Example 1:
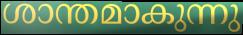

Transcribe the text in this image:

ശാന്തമാകുന്നു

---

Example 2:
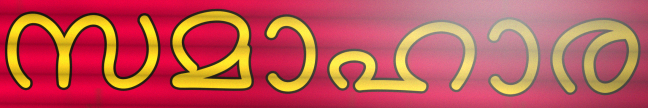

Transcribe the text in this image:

സമാഹാര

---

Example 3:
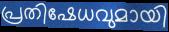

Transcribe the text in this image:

പ്രതിഷേധവുമായി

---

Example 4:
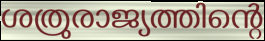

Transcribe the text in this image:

ശത്രുരാജ്യത്തിന്റെ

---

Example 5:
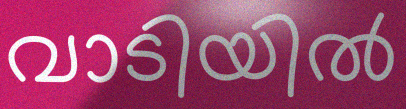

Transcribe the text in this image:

വാടിയിൽ